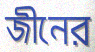
জীনের